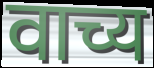
वाच्य